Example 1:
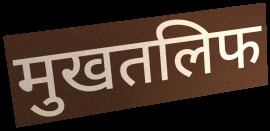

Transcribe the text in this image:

मुखतलिफ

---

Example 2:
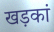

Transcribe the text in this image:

खड़कां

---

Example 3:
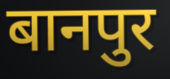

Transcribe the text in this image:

बानपुर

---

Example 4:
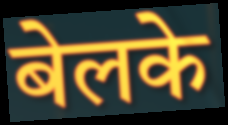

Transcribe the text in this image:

बेलके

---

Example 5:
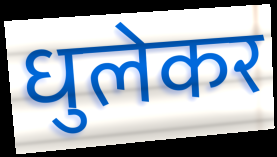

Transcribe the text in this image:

धुलेकर